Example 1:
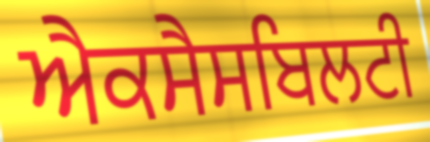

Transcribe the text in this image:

ਐਕਸੈਸਬਿਲਟੀ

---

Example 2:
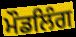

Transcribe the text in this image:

ਮੌਡਲਿੰਗ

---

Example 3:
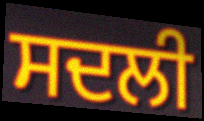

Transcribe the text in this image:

ਸਦਲੀ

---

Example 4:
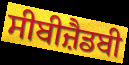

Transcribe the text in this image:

ਸੀਬੀਜ਼ੈਡਬੀ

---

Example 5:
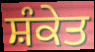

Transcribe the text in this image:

ਸ਼ੰਕੇਤ